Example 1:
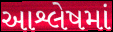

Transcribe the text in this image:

આશ્લેષમાં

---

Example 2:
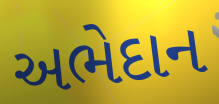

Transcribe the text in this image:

અભેદાન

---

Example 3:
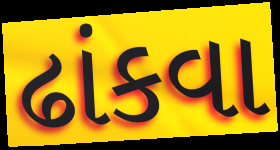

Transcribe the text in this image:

ઢાંકવા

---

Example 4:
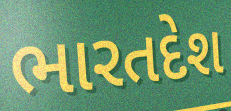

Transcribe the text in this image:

ભારતદેશ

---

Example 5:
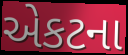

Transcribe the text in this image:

એકટના